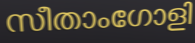
സീതാംഗോളി